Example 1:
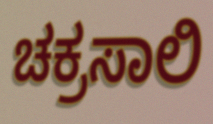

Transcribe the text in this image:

ಚಕ್ರಸಾಲಿ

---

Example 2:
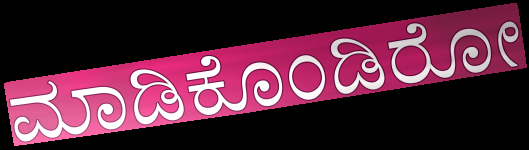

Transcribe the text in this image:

ಮಾಡಿಕೊಂಡಿರೋ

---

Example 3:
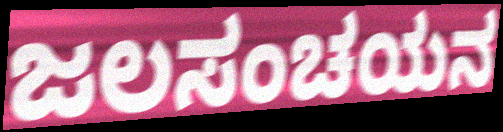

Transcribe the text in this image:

ಜಲಸಂಚಯನ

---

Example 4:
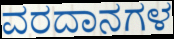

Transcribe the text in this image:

ವರದಾನಗಳ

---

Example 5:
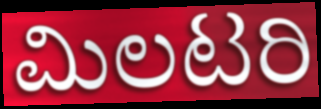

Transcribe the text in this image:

ಮಿಲಟರಿ